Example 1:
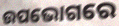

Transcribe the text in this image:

ଉପଭୋଗରେ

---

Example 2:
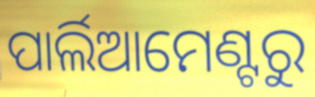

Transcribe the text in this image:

ପାର୍ଲିଆମେଣ୍ଟରୁ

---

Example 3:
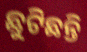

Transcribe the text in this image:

ଛୁଟିଛନ୍ତି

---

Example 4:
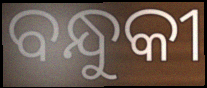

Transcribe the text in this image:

ବନ୍ଧୁକୀ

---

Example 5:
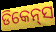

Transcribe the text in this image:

ଡିକେନ୍‌ସ